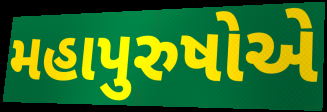
મહાપુરુષોએ